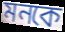
মনকে